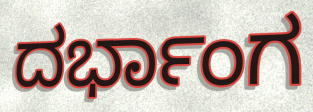
ದರ್ಭಾಂಗ